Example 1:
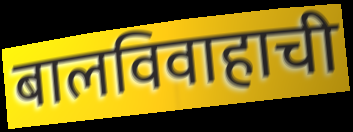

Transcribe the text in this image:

बालविवाहाची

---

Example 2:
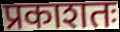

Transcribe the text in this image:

प्रकाशतः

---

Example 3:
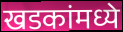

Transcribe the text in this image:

खडकांमध्ये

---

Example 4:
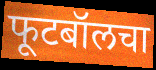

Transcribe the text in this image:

फूटबॉलचा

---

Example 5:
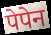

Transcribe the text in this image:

पेपेन